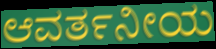
ಆವರ್ತನೀಯ